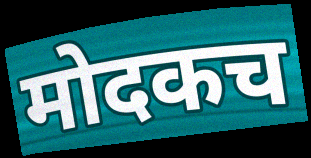
मोदकच